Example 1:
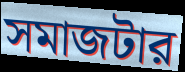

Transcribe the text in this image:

সমাজটার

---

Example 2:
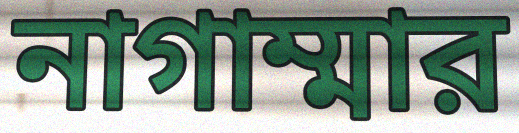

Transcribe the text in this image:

নাগাম্মার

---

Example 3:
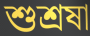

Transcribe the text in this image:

শুশ্রষা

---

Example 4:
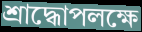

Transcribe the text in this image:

শ্রাদ্ধোপলক্ষে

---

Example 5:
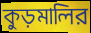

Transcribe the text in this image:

কুড়মালির